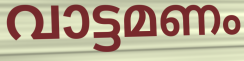
വാട്ടമണം